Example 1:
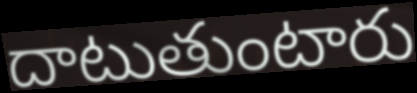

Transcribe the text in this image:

దాటుతుంటారు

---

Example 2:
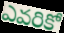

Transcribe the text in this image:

ఎవరికో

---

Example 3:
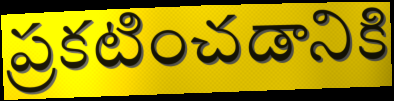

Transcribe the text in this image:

ప్రకటించడానికి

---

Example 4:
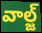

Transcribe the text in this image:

వాల్జ్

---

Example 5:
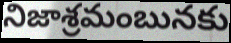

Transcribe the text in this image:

నిజాశ్రమంబునకు